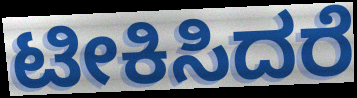
ಟೀಕಿಸಿದರೆ